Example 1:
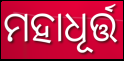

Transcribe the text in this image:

ମହାଧୂର୍ତ୍ତ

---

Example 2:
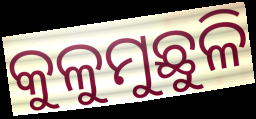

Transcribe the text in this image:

କୁଳୁମୁଛୁଳି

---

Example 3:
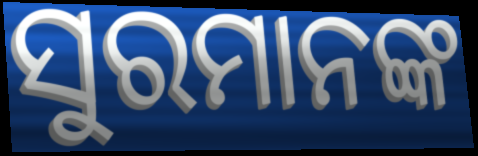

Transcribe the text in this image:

ସୁରମାନଙ୍କ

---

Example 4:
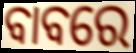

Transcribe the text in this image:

ବାବରେ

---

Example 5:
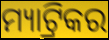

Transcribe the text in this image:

ମ୍ୟାଟ୍ରିକର